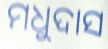
ମଧୁଦାସ